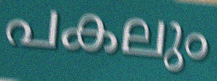
പകലും